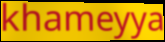
khameyya